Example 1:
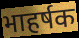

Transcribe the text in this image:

भाहर्षक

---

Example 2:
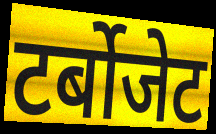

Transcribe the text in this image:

टर्बोजेट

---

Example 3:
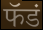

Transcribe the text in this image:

फॅडं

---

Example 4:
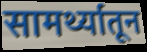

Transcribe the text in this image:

सामर्थ्यातून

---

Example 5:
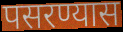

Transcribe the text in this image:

पसरण्यास